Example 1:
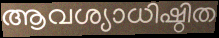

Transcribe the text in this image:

ആവശ്യാധിഷ്ഠിത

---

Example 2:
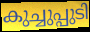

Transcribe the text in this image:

കുച്ചുപ്പുടി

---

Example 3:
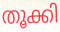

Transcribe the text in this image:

തൂക്കി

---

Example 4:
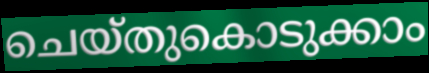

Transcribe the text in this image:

ചെയ്തുകൊടുക്കാം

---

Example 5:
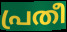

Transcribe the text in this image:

പ്രതീ